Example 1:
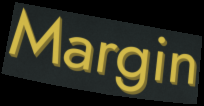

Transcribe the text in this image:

Margin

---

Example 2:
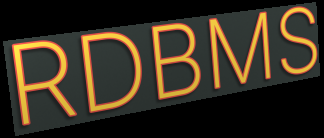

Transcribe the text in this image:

RDBMS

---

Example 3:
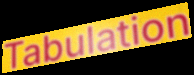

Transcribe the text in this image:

Tabulation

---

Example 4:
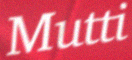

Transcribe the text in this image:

Mutti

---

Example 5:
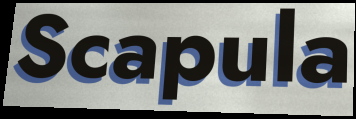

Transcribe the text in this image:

Scapula